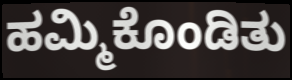
ಹಮ್ಮಿಕೊಂಡಿತು